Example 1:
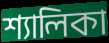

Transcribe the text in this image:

শ্যালিকা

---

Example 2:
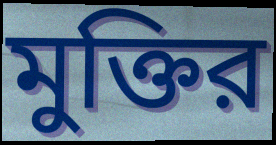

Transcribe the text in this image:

মুক্তির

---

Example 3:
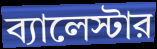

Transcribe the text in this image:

ব্যালেস্টার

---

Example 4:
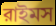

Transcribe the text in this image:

রাইমস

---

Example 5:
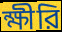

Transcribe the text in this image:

ক্ষীরি